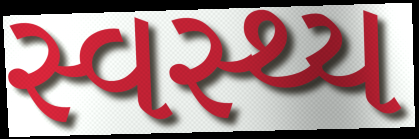
સ્વસ્થ્ય